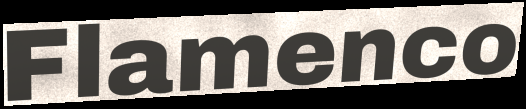
Flamenco